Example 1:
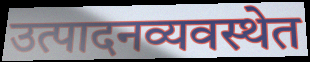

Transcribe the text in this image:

उत्पादनव्यवस्थेत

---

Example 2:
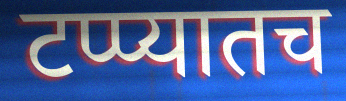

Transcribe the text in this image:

टप्प्यातच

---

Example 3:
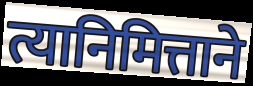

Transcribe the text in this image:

त्यानिमित्ताने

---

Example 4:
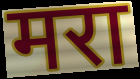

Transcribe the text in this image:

मरा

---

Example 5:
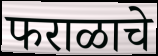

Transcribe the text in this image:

फराळाचे